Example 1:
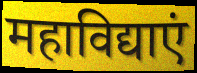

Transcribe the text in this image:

महाविद्याएं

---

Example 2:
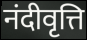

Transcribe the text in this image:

नंदीवृत्ति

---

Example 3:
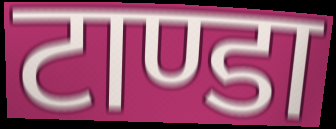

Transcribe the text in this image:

टाण्डा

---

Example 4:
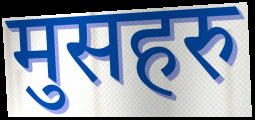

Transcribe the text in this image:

मुसहरु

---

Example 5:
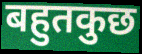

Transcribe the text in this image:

बहुतकुछ